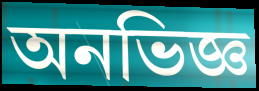
অনভিজ্ঞ